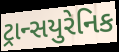
ટ્રાન્સયુરેનિક